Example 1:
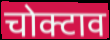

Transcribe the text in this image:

चोक्टाव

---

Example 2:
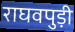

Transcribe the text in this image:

राघवपुड़ी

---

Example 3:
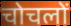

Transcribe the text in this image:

चोचलों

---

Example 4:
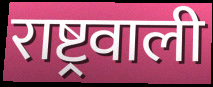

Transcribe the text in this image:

राष्ट्रवाली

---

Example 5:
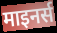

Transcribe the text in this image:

माइनर्स